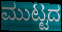
ಮುಟ್ಟದ